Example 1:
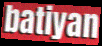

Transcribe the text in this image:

batiyan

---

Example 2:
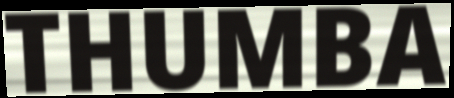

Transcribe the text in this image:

THUMBA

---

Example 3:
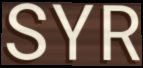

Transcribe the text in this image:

SYR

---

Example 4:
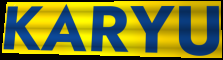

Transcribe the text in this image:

KARYU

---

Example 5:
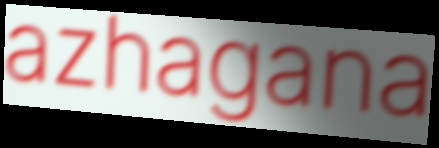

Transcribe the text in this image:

azhagana